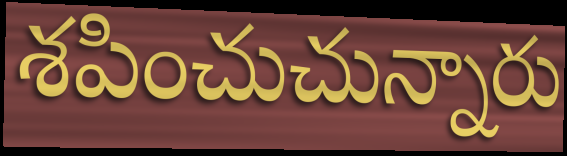
శపించుచున్నారు